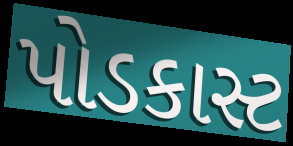
પોડકાસ્ટ